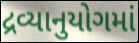
દ્રવ્યાનુયોગમાં